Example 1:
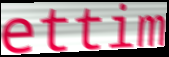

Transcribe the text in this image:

ettim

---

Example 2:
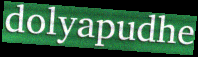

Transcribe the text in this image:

dolyapudhe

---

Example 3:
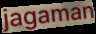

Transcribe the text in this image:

jagaman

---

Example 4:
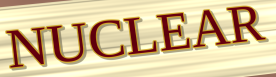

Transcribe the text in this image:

NUCLEAR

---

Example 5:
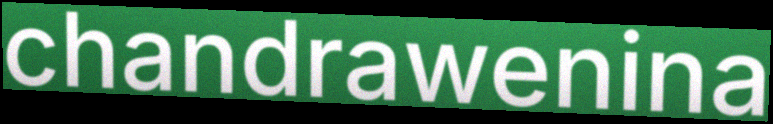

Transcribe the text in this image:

chandrawenina